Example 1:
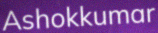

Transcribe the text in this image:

Ashokkumar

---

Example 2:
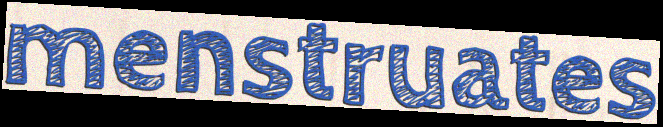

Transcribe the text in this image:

menstruates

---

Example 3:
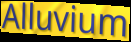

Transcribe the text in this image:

Alluvium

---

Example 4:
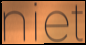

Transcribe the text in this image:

niet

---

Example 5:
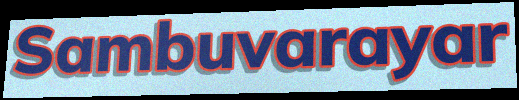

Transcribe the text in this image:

Sambuvarayar